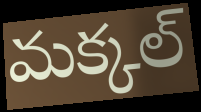
మక్కల్